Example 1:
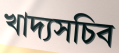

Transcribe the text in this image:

খাদ্যসচিব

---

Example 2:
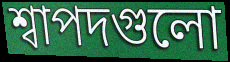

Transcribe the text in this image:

শ্বাপদগুলো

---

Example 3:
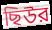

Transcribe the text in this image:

ছিউর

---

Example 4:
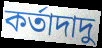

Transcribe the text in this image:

কর্তাদাদু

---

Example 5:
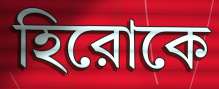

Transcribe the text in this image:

হিরোকে